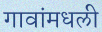
गावांमधली